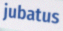
jubatus